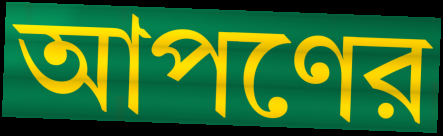
আপণের